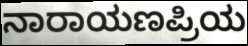
ನಾರಾಯಣಪ್ರಿಯ